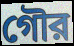
গৌর